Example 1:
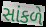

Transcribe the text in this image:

સાંકળે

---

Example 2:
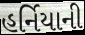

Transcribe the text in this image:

હર્નિયાની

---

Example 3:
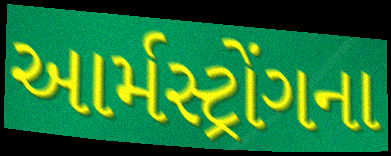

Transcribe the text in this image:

આર્મસ્ટ્રોંગના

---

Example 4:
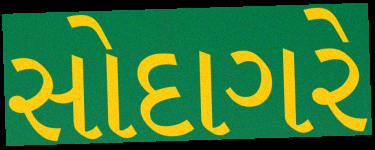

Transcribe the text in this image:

સોદાગરે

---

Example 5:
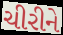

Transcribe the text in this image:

ચીરીને